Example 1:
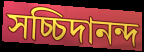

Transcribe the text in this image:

সচ্চিদানন্দ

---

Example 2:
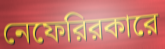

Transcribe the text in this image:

নেফেরিরকারে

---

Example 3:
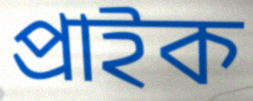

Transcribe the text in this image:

প্রাইক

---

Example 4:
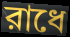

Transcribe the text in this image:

রাধে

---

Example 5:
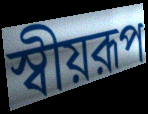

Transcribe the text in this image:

স্বীয়রূপ